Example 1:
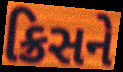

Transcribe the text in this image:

ક્રિસને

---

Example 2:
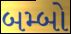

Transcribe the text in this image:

બમ્બો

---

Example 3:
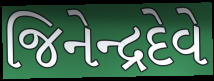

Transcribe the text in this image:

જિનેન્દ્રદેવે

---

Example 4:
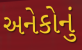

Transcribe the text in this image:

અનેકોનું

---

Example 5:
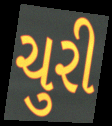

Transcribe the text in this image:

ચુરી